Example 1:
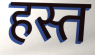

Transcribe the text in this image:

हस्त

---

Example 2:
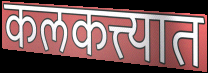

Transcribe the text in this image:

कलकत्त्यात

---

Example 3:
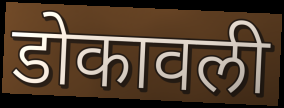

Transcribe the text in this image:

डोकावली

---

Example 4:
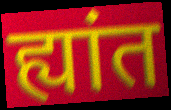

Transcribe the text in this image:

ह्यांत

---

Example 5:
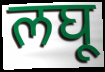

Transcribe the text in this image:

लघू